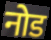
नोड